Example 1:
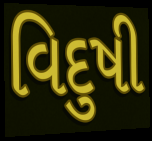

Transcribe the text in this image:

વિદુષી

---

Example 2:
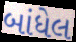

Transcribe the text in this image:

બાંધેલ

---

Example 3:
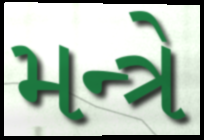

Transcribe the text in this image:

મન્ત્રે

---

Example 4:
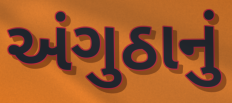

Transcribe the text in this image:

અંગુઠાનું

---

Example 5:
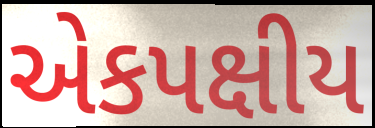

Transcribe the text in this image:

એકપક્ષીય